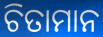
ଚିତାମାନ